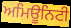
ਅਮਿਊਨਿਟੀ